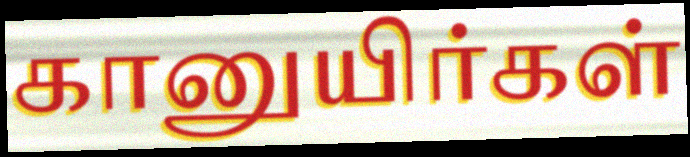
கானுயிர்கள்